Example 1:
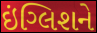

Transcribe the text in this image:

ઇંગ્લિશને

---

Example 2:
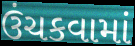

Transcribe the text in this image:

ઉંચકવામાં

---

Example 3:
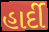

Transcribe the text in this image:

હાર્દી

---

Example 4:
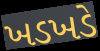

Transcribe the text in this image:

ખડખડે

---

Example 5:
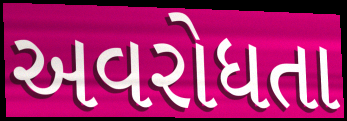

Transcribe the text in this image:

અવરોધતા